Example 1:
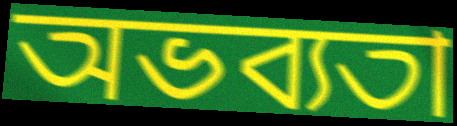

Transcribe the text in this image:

অভব্যতা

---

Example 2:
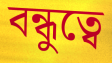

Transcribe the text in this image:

বন্ধুত্বে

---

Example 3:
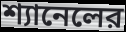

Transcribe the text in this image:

শ্যানেলের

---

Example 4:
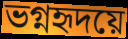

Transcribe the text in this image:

ভগ্নহৃদয়ে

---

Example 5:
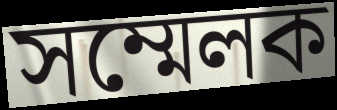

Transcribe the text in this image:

সম্মেলক